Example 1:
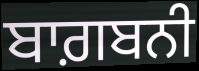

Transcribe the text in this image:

ਬਾਗ਼ਬਨੀ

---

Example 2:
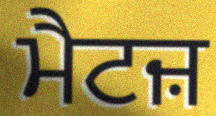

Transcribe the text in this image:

ਮੈਟਜ਼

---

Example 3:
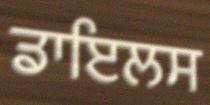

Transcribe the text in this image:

ਡਾਇਲਸ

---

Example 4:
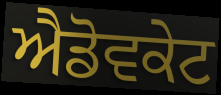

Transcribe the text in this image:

ਐਡੋਵਕੇਟ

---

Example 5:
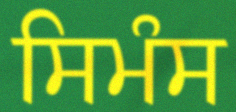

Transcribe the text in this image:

ਸਿਮੰਸ